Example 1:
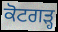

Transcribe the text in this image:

ਕੋਟਗੜ੍ਹ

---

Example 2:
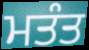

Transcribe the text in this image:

ਮਤੰਤ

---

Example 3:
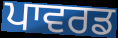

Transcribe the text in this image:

ਪਾਵਰਡ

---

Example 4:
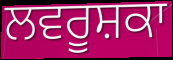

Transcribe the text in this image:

ਲਵਰੂਸ਼ਕਾ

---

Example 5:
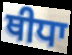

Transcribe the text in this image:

ਥੀਧਾ